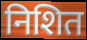
निशित